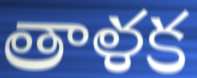
తాళక